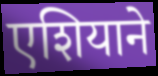
एशियाने